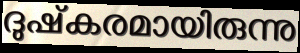
ദുഷ്‌കരമായിരുന്നു